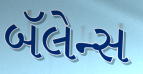
બૅલેન્સ